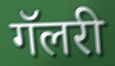
गॅलरी